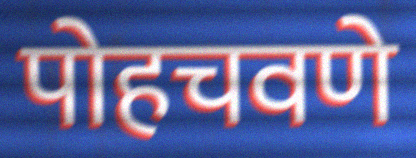
पोहचवणे